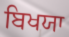
ਬਿਖਯਾ